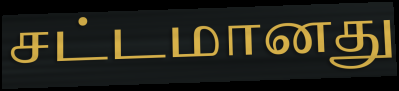
சட்டமானது